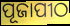
ପୂଜାପୀଠ